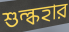
শুল্কহার